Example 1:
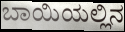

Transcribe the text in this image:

ಬಾಯಿಯಲ್ಲಿನ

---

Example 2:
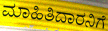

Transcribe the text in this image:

ಮಾಹಿತಿದಾರನಿಗೆ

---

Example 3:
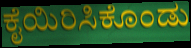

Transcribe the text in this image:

ಕೈಯಿರಿಸಿಕೊಂಡು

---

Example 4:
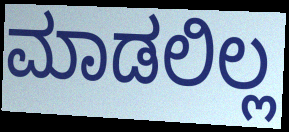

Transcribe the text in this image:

ಮಾಡಲಿಲ್ಲ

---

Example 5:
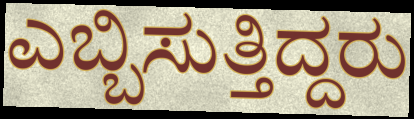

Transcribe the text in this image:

ಎಬ್ಬಿಸುತ್ತಿದ್ದರು